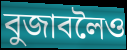
বুজাবলৈও